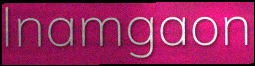
Inamgaon